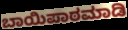
ಬಾಯಿಪಾಠಮಾಡಿ